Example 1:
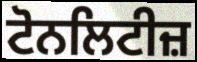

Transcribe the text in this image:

ਟੋਨਲਿਟੀਜ਼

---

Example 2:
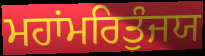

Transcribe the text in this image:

ਮਹਾਂਮਰਿਤੁੰਜਯ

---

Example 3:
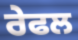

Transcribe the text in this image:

ਰੇਫਲ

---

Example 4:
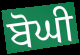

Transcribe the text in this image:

ਬੋਘੀ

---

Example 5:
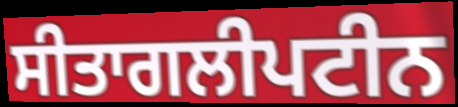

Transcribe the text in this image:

ਸੀਤਾਗਲੀਪਟੀਨ